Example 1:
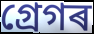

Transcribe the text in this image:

গ্ৰেগৰ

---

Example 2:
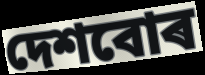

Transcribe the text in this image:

দেশবোৰ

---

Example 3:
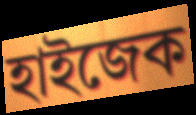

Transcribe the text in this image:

হাইজেক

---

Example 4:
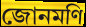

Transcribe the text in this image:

জোনমণি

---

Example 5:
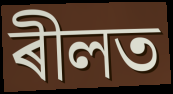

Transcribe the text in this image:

ৰীলত